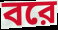
বরে